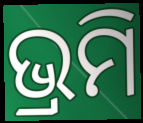
ଭ୍ରମି